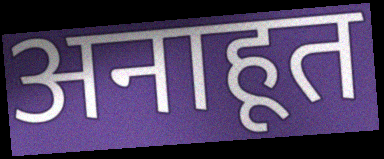
अनाहूत